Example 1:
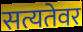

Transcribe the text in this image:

सत्यतेवर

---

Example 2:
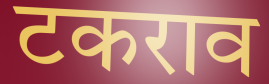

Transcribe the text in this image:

टकराव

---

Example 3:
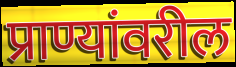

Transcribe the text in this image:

प्राण्यांवरील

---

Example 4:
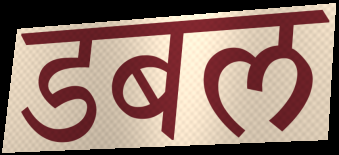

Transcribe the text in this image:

डबल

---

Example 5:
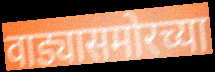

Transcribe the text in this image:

वाड्यासमोरच्या